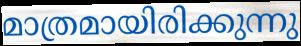
മാത്രമായിരിക്കുന്നു